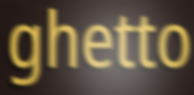
ghetto